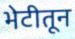
भेटीतून